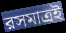
রসমাত্রই